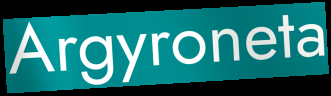
Argyroneta